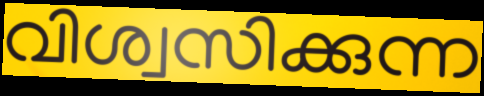
വിശ്വസിക്കുന്ന